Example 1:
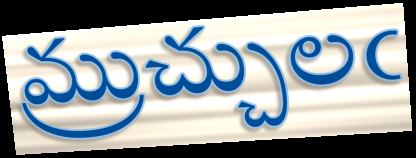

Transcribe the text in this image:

మ్రుచ్చులఁ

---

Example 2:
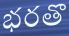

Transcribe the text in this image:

భరతొ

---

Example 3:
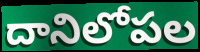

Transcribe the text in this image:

దానిలోపల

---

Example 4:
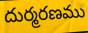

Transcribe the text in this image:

దుర్మరణము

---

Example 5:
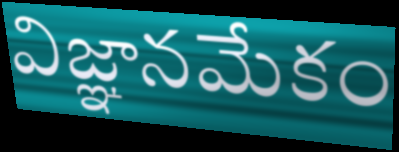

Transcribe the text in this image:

విజ్ఞానమేకం